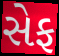
સેફ